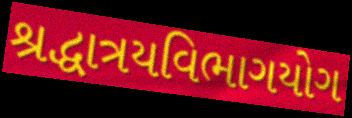
શ્રદ્ધાત્રયવિભાગયોગ